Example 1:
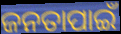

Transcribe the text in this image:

ଜନତାପାଇଁ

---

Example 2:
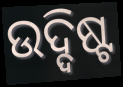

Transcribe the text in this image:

ଉଦ୍ଦିଷ୍ଟ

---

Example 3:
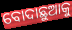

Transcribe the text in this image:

ବୋଦାଛୁଆକୁ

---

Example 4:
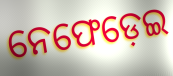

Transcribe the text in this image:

ନେଫେଡ଼େଇ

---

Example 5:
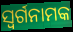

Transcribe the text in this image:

ସ୍ଵର୍ଗନାମକ